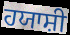
ਹਯਾਸ਼ੀ